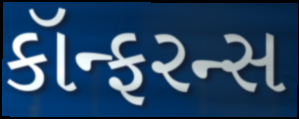
કૉન્ફરન્સ